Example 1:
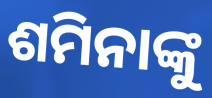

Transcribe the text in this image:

ଶମିନାଙ୍କୁ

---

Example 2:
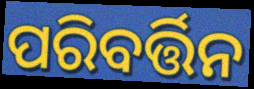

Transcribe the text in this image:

ପରିବର୍ତ୍ତିନ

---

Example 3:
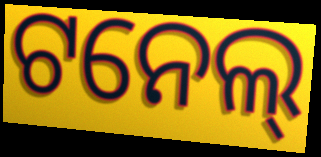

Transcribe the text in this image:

ଟନେଲ୍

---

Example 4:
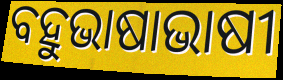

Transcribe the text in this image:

ବହୁଭାଷାଭାଷୀ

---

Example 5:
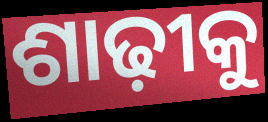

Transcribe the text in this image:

ଶାଢ଼ୀକୁ